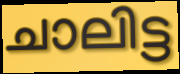
ചാലിട്ട